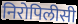
निरोपिलीसी